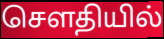
செளதியில்